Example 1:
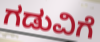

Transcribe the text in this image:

ಗಡುವಿಗೆ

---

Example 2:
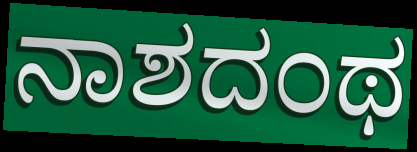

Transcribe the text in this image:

ನಾಶದಂಥ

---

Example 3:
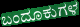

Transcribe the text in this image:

ಬಂದೂಕುಗಳ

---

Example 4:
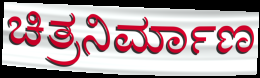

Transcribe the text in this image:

ಚಿತ್ರನಿರ್ಮಾಣ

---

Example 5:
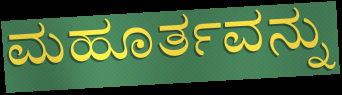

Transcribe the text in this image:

ಮಹೂರ್ತವನ್ನು